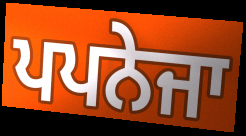
ਪਪਨੇਜਾ